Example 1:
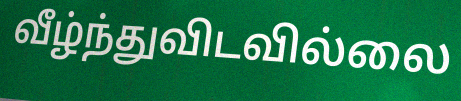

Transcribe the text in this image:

வீழ்ந்துவிடவில்லை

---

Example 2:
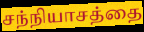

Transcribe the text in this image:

சந்நியாசத்தை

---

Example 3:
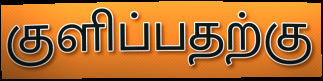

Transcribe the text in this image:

குளிப்பதற்கு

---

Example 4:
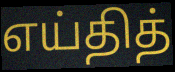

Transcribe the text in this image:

எய்தித்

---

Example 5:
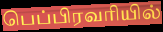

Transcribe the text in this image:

பெப்பிரவரியில்